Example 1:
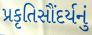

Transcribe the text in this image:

પ્રકૃતિસૌંદર્યનું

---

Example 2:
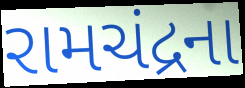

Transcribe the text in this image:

રામચંદ્રના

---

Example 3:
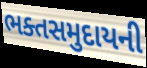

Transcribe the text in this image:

ભક્તસમુદાયની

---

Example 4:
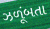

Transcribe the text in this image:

ઝળૂંબતા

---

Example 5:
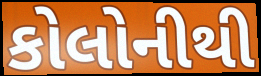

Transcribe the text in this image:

કોલોનીથી